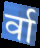
र्वा